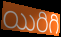
యిరిగి